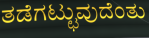
ತಡೆಗಟ್ಟುವುದೆಂತು